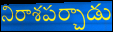
నిరాశపర్చాడు